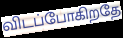
விடப்போகிறதே